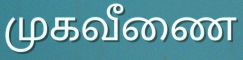
முகவீணை